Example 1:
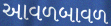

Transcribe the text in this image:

આવળબાવળ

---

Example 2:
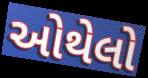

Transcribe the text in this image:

ઓથેલો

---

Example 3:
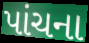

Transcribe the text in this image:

પાંચના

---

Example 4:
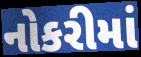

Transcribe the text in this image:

નોકરીમાં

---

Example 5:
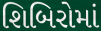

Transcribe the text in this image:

શિબિરોમાં